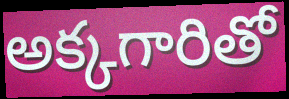
అక్కగారితో